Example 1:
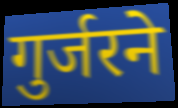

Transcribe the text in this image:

गुर्जरने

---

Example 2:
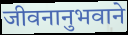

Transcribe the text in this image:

जीवनानुभवाने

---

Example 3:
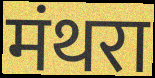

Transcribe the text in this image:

मंथरा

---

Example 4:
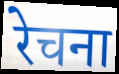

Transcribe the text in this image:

रेचना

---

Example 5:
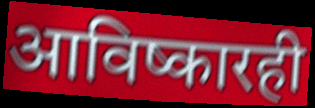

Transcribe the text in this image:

आविष्कारही